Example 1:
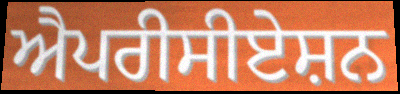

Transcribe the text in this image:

ਐਪਰੀਸੀਏਸ਼ਨ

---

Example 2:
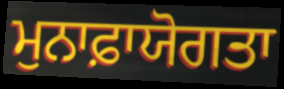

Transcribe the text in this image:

ਮੁਨਾਫ਼ਾਯੋਗਤਾ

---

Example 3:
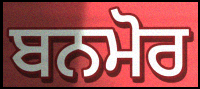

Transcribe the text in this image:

ਬਨਮੋਰ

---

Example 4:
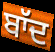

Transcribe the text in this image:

ਬਾੱਦ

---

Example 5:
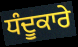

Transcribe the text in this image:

ਧੰਦੂਕਾਰੇ